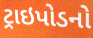
ટ્રાઇપોડનો